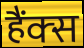
हैंक्‍स